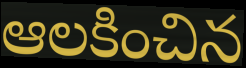
ఆలకించిన